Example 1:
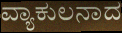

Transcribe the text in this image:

ವ್ಯಾಕುಲನಾದ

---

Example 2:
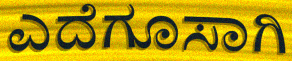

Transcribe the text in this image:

ಎದೆಗೂಸಾಗಿ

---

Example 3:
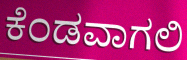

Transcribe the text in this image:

ಕೆಂಡವಾಗಲಿ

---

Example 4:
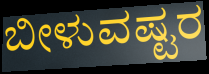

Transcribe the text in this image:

ಬೀಳುವಷ್ಟರ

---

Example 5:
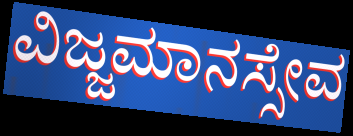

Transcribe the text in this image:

ವಿಜ್ಜಮಾನಸ್ಸೇವ